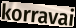
korravai